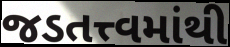
જડતત્ત્વમાંથી